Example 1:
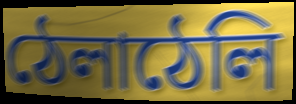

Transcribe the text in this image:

ঠেলাঠেলি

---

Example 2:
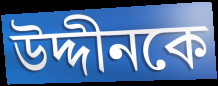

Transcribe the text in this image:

উদ্দীনকে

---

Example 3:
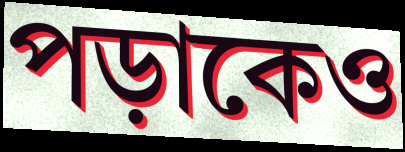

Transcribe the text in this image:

পড়াকেও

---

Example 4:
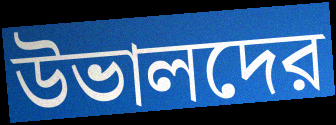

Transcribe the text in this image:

উভালদের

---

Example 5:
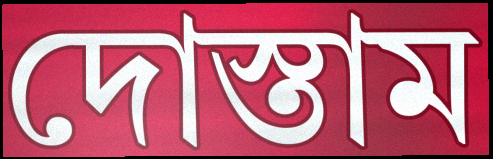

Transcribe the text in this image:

দোস্তাম